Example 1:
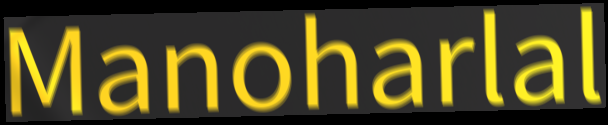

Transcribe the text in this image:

Manoharlal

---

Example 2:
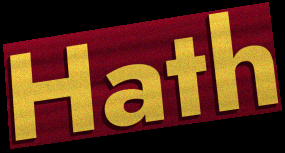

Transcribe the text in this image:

Hath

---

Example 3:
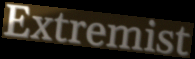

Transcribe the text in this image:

Extremist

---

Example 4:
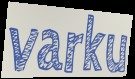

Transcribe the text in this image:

varku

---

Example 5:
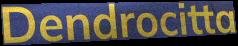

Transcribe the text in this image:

Dendrocitta